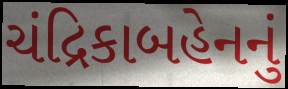
ચંદ્રિકાબહેનનું